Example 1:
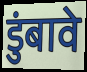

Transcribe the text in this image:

डुंबावे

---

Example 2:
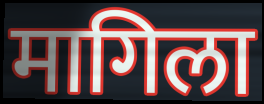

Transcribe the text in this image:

मागिला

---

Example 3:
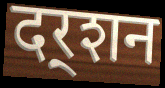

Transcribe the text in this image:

दर्शन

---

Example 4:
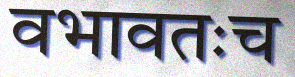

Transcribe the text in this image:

वभावतःच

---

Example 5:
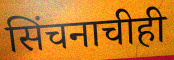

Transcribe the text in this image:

सिंचनाचीही